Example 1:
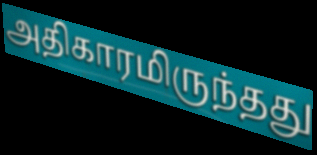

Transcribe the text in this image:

அதிகாரமிருந்தது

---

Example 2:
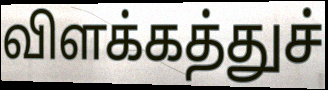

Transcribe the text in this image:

விளக்கத்துச்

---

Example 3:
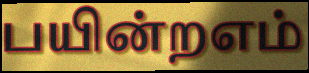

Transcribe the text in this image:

பயின்றஎம்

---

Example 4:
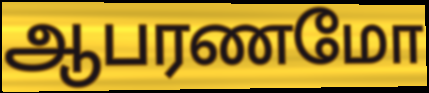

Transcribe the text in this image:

ஆபரணமோ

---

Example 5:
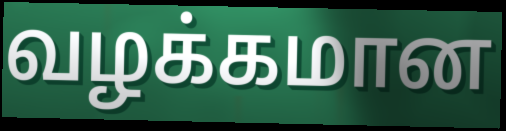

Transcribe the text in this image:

வழக்கமான